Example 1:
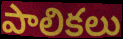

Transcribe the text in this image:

పాలికలు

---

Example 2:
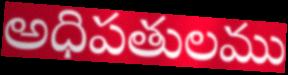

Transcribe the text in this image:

అధిపతులము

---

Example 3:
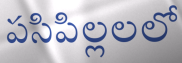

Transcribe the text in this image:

పసిపిల్లలలో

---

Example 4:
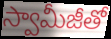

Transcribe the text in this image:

స్వామీజీతో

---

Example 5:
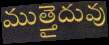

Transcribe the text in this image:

ముత్తైదువు